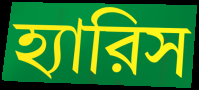
হ্যারিস